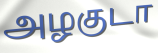
அழகுடா